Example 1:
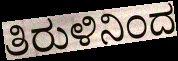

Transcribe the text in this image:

ತಿರುಳಿನಿಂದ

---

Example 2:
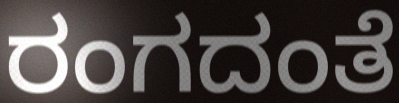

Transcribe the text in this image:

ರಂಗದಂತೆ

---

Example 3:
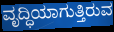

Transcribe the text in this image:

ವೃದ್ಧಿಯಾಗುತ್ತಿರುವ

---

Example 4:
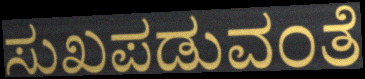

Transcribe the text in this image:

ಸುಖಪಡುವಂತೆ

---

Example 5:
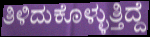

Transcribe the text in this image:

ತಿಳಿದುಕೊಳ್ಳುತ್ತಿದ್ದೆ